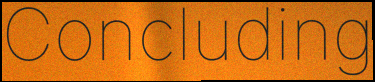
Concluding